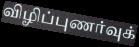
விழிப்புணர்வுக்